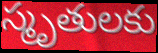
స్మృతులకు